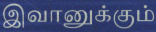
இவானுக்கும்